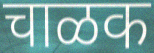
चाळक